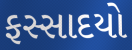
ફસ્સાદયો